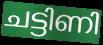
ചട്ടിണി